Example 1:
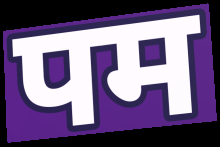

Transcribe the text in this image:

पम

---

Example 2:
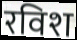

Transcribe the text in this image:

रविश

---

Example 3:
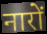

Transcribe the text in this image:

नारों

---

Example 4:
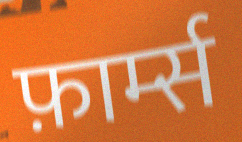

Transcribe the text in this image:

फ़ार्म्स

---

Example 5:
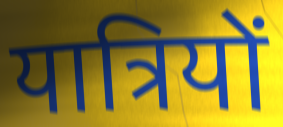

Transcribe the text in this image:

यात्रियों